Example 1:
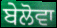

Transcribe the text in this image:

ਬੇਲੋਵਾ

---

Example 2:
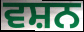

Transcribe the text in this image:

ਵਸ਼ਨ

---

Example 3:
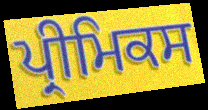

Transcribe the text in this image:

ਪ੍ਰੀਮਿਕਸ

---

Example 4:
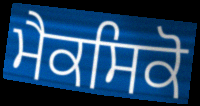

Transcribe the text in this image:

ਮੈਕਸਿਕੋ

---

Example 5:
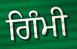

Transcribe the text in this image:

ਗਿੰਮੀ